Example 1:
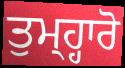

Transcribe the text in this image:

ਤੁਮ੍ਹ੍ਹਾਰੋ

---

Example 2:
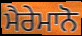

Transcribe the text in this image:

ਮੈਰੇਮਾਨੋ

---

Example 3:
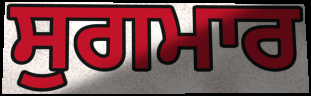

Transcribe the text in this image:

ਸੁਗਮਾਰ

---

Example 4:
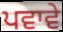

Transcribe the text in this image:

ਪਵਾਵੇ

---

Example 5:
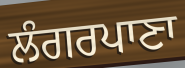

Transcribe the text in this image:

ਲੰਗਰਪਾਣਾ